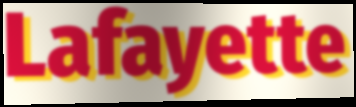
Lafayette